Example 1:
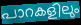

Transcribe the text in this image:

പാറകളിലും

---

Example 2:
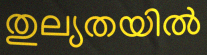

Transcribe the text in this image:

തുല്യതയിൽ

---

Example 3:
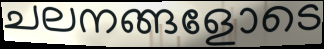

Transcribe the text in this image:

ചലനങ്ങളോടെ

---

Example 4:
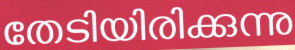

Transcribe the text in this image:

തേടിയിരിക്കുന്നു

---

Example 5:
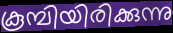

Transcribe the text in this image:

കൂമ്പിയിരിക്കുന്നു